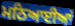
ਮਠਿਆਈਆਂ